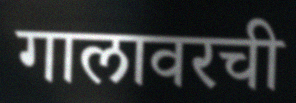
गालावरची